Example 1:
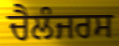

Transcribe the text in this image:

ਚੈਲੰਜਰਸ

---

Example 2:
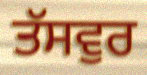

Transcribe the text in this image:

ਤੱਸਵੁਰ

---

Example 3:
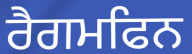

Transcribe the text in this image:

ਰੈਗਮਫਿਨ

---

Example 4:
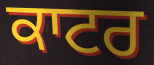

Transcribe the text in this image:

ਕਾਟਰ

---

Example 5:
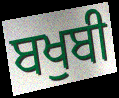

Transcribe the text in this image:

ਬਖੁਬੀ